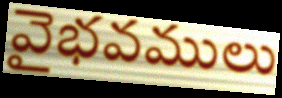
వైభవములు